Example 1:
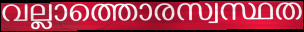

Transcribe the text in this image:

വല്ലാത്തൊരസ്വസ്ഥത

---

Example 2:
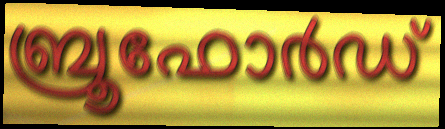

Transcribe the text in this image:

ബ്രൂഫോർഡ്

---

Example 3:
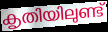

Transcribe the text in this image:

കൃതിയിലുണ്ട്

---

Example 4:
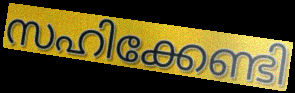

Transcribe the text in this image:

സഹിക്കേണ്ടി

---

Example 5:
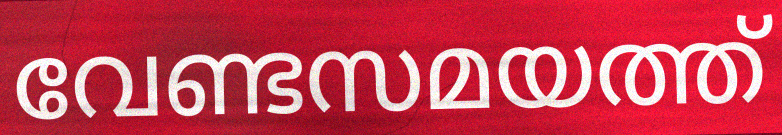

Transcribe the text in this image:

വേണ്ടസമയത്ത്